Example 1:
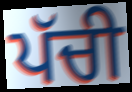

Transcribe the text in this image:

ਪੱਚੀ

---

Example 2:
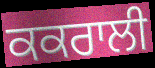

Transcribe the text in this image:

ਕਕਰਾਲੀ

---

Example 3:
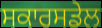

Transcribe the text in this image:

ਸਕਾਰਸਡੇਲ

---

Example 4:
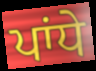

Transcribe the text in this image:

ਪਾਂਧੇ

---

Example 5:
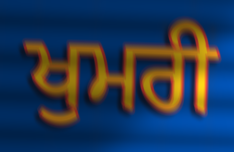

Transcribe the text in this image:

ਖੁਮਰੀ